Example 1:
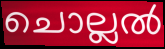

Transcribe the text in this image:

ചൊല്ലൽ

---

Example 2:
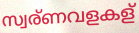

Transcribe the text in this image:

സ്വര്ണവളകള്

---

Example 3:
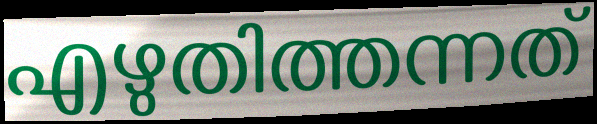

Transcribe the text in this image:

എഴുതിത്തന്നത്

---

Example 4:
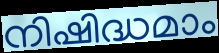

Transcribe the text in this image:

നിഷിദ്ധമാം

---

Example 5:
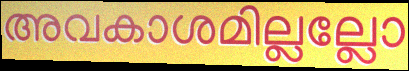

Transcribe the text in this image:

അവകാശമില്ലല്ലോ